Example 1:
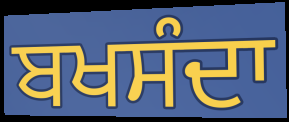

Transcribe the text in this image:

ਬਖਸੰਦਾ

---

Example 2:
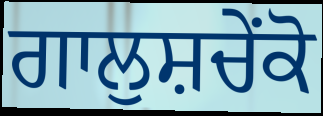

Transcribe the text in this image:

ਗਾਲੁਸ਼ਚੇਂਕੋ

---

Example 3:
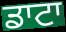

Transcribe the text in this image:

ਡਾਟਾ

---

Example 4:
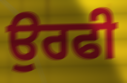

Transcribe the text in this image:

ਉਰਫੀ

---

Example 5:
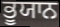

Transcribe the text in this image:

ਭੂਯਾਨ